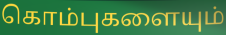
கொம்புகளையும்